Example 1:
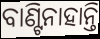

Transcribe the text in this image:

ବାଣ୍ଟିନାହାନ୍ତି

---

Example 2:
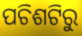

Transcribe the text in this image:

ପଚିଶଟିରୁ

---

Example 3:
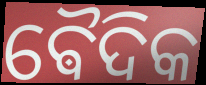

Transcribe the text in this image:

ଵୈଦିକ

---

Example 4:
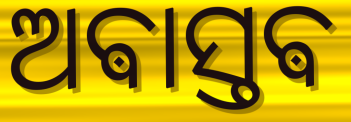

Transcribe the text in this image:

ଅଵାସ୍ତଵ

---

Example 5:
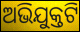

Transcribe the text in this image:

ଅଭିଯୁକ୍ତଟି